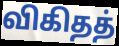
விகிதத்